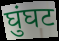
घुंघट